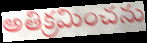
అతిక్రమించను